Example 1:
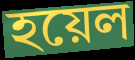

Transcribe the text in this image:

হয়েল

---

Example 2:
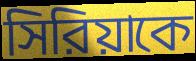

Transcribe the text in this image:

সিরিয়াকে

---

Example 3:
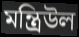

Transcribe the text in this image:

মন্ত্রিউল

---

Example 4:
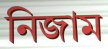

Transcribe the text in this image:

নিজাম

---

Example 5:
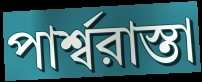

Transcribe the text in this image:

পার্শ্বরাস্তা